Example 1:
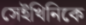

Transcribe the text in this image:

সেইখিনিকে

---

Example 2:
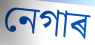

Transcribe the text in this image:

নেগাৰ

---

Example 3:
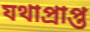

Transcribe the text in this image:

যথাপ্ৰাপ্ত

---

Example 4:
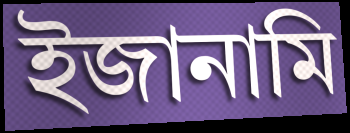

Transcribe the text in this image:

ইজানামি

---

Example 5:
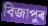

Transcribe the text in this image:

বিজাপুৰ